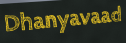
Dhanyavaad